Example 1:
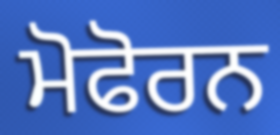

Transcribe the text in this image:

ਮੋਫੋਰਨ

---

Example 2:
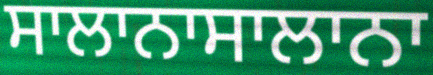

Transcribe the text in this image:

ਸਾਲਾਨਾਸਾਲਾਨਾ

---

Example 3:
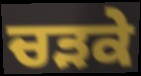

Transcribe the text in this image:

ਚੜਕੇ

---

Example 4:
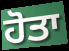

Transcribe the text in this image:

ਹੋਤਾ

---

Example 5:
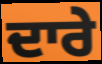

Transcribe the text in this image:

ਦਾਰੇ